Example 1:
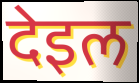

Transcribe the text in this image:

देइल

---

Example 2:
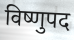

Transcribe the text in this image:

विष्णुपद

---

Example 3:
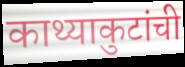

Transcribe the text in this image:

काथ्याकुटांची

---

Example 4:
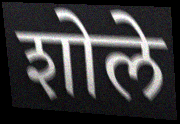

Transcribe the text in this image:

शोले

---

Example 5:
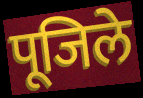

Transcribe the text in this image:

पूजिले